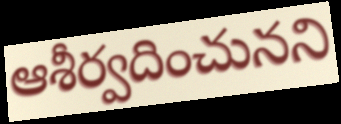
ఆశీర్వదించునని